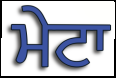
ਮੇਟਾ